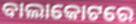
ବାଲାକୋଟରେ